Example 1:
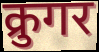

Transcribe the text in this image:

क्रुगर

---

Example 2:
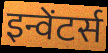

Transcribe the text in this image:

इन्वेंटर्स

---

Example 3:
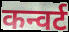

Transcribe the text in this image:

कन्वर्ट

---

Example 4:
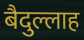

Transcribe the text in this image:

बैदुल्लाह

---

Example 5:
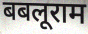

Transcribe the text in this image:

बबलूराम